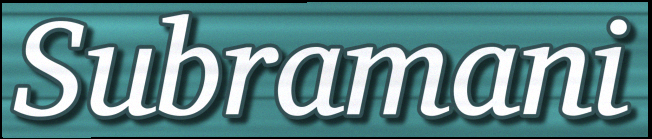
Subramani